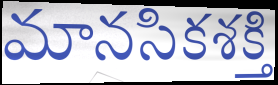
మానసికశక్తి